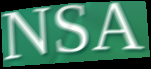
NSA